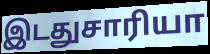
இடதுசாரியா